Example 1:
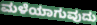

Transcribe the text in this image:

ಮಳೆಯಾಗುವುದು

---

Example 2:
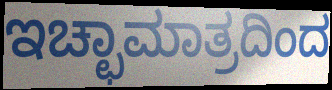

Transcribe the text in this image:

ಇಚ್ಛಾಮಾತ್ರದಿಂದ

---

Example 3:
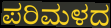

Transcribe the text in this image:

ಪರಿಮಳದ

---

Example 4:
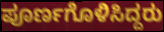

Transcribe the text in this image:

ಪೂರ್ಣಗೊಳಿಸಿದ್ದರು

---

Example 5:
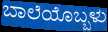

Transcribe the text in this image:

ಬಾಲೆಯೊಬ್ಬಳು